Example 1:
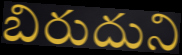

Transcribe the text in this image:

బిరుదుని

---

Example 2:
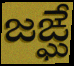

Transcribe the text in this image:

జఙ్ఘే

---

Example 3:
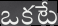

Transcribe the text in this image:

ఒకటే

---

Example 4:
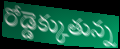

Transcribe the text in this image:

రోడ్డెక్కుతున్న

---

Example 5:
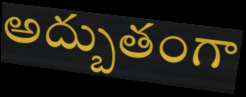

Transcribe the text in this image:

అద్బుతంగా